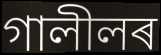
গালীলৰ